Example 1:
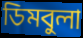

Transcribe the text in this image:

ডিমবুলা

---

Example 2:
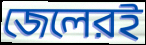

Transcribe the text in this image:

জেলেরই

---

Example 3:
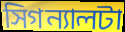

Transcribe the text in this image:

সিগন্যালটা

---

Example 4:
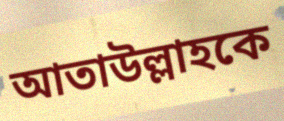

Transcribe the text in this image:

আতাউল্লাহকে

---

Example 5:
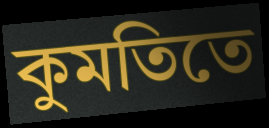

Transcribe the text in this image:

কুমতিতে